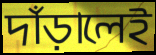
দাঁড়ালেই